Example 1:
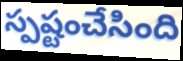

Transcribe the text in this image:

స్పష్టంచేసింది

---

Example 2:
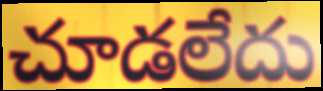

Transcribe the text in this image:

చూడలేదు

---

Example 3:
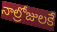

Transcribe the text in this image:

నాల్రోజులకే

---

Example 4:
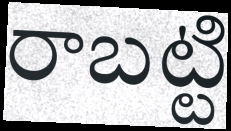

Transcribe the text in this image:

రాబట్టి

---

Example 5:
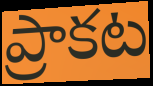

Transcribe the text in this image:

ప్రాకట